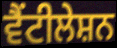
ਵੈਂਟੀਲੇਸ਼ਨ